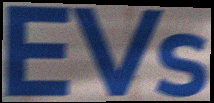
EVs